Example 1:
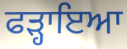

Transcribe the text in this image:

ਫੜ੍ਹਾਇਆ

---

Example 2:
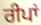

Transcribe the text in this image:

ਰੀਪਾਂ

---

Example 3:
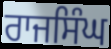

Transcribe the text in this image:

ਰਾਜਸਿੰਘ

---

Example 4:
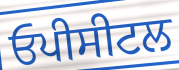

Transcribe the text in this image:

ਓਪੀਸੀਟਲ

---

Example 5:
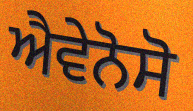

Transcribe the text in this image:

ਐਵੇਨੋਸੋ